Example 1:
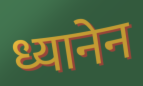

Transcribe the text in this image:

ध्यानेन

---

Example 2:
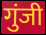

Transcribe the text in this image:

गुंजी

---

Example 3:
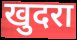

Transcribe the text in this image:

खुदरा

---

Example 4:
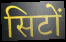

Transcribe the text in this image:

सिटों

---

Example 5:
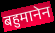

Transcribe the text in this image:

बहुमानेन